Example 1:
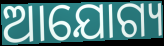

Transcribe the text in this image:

ଆଯୋଗ୍ୟ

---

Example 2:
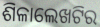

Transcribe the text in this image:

ଶିଳାଲେଖଟିର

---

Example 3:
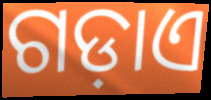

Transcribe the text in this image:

ଗଡ଼ାଏ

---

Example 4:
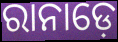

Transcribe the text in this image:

ରାନାଡ଼େ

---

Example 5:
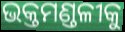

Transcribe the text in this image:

ଭକ୍ତମଣ୍ଡଳୀକୁ